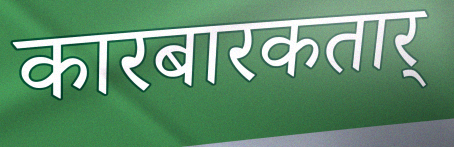
कारबारकतार्